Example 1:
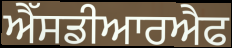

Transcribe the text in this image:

ਐੱਸਡੀਆਰਐਫ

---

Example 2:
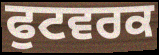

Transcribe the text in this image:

ਫੁਟਵਰਕ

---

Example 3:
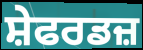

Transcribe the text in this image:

ਸ਼ੇਫਰਡਜ਼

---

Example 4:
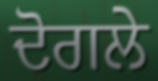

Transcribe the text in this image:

ਦੋਗਲੇ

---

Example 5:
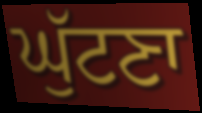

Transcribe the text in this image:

ਘੁੱਟਣਾ